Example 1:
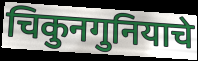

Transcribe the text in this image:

चिकुनगुनियाचे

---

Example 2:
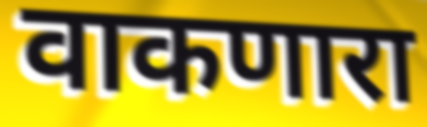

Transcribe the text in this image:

वाकणारा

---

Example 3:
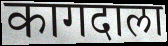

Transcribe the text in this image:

कागदाला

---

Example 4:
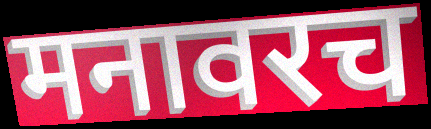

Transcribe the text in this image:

मनावरच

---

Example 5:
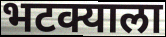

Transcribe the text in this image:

भटक्याला